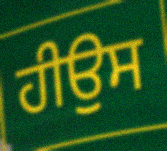
ਹੀਉਸ